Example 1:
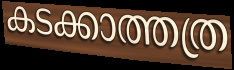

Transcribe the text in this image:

കടക്കാത്തത്ര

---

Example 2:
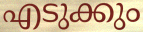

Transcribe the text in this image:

എടുക്കും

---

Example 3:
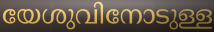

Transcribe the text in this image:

യേശുവിനോടുള്ള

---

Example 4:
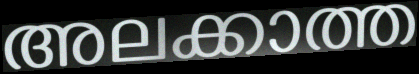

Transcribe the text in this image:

അലക്കാത്ത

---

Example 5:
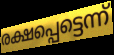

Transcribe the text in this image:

രക്ഷപ്പെട്ടെന്ന്